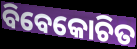
ବିବେକୋଚିତ